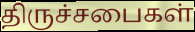
திருச்சபைகள்